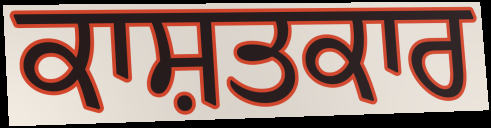
ਕਾਸ਼ਤਕਾਰ